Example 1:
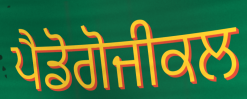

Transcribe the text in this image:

ਪੈਡੋਗੋਜੀਕਲ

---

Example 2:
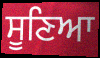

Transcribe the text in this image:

ਸੂਣਿਆ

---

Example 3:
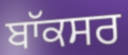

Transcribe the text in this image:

ਬਾੱਕਸਰ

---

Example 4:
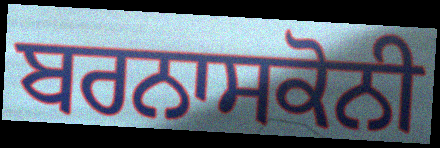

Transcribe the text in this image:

ਬਰਨਾਸਕੋਨੀ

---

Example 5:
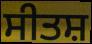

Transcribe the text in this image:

ਸੀਤਸ਼